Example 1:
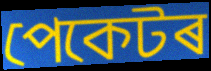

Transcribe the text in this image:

পেকেটৰ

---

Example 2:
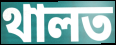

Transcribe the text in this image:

থালত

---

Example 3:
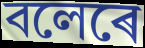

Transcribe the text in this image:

বলেৰে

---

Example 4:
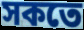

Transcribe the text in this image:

সকতে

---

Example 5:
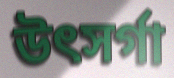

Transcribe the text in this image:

উৎসৰ্গা